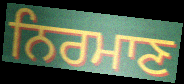
ਨਿਰਮਾਣ